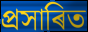
প্ৰসাৰিত